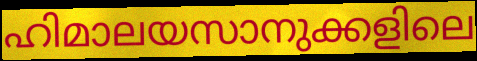
ഹിമാലയസാനുക്കളിലെ